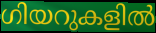
ഗിയറുകളിൽ